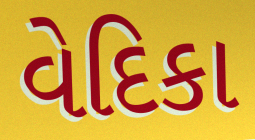
વેદિકા